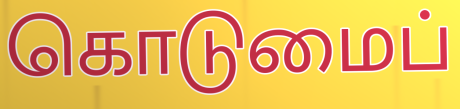
கொடுமைப்